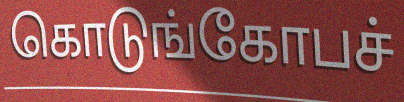
கொடுங்கோபச்